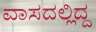
ವಾಸದಲ್ಲಿದ್ದ